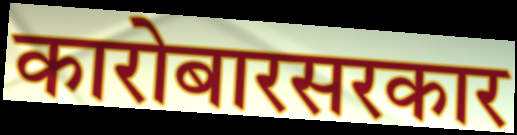
कारोबारसरकार